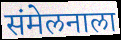
संमेलनाला